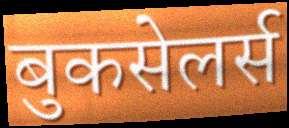
बुकसेलर्स